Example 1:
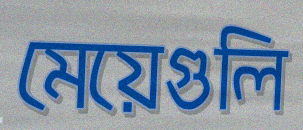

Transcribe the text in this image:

মেয়েগুলি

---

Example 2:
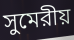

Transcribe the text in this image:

সুমেরীয়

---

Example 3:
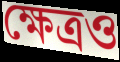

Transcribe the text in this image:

ক্ষেত্রও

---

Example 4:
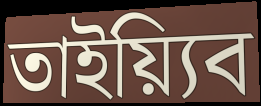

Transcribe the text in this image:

তাইয়্যিব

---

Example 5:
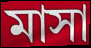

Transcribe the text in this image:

মাসা